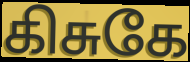
கிசுகே